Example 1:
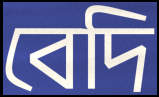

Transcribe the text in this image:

বেদি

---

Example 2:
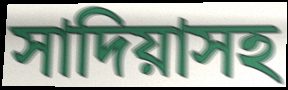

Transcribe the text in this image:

সাদিয়াসহ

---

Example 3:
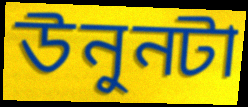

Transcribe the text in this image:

উনুনটা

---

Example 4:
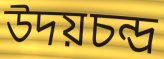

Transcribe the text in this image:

উদয়চন্দ্র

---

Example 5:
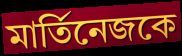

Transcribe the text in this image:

মার্তিনেজকে